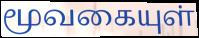
மூவகையுள்